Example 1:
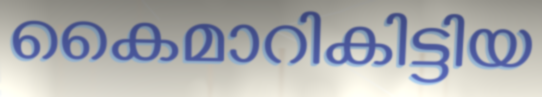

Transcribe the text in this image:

കൈമാറികിട്ടിയ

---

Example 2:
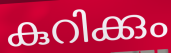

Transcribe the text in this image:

കുറിക്കും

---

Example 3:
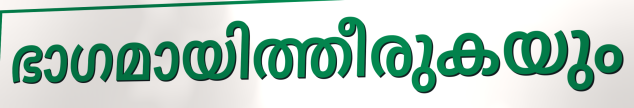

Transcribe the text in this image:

ഭാഗമായിത്തീരുകയും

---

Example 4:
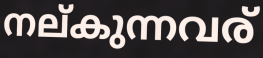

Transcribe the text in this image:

നല്കുന്നവര്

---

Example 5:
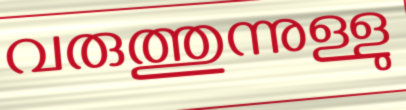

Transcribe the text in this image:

വരുത്തുന്നുള്ളു